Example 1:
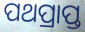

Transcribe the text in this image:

ପଥପ୍ରାପ୍ତ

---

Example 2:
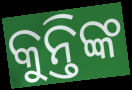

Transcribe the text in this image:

କୁନ୍ତିଙ୍କ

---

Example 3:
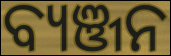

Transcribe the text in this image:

ବ୍ୟଞ୍ଜନ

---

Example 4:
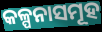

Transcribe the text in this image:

କଳ୍ପନାସମୂହ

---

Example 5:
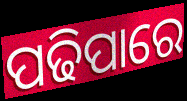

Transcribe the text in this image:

ପଢିପାରେ